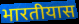
भारतीयास